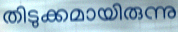
തിടുക്കമായിരുന്നു